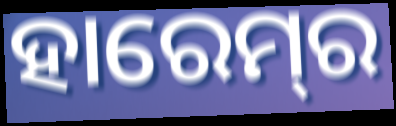
ହାରେମ୍‍ର